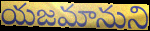
యజమానుని